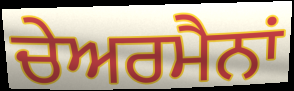
ਚੇਅਰਮੈਨਾਂ